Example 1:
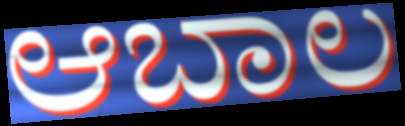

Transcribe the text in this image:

ಆಬಾಲ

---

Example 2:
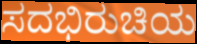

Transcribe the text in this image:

ಸದಭಿರುಚಿಯ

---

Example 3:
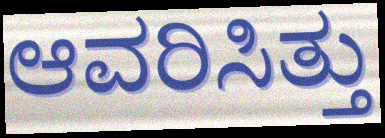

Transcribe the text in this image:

ಆವರಿಸಿತ್ತು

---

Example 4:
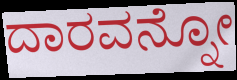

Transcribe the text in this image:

ದಾರವನ್ನೋ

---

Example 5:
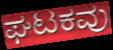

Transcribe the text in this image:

ಘಟಕವು